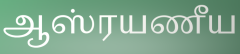
ஆஸ்ரயணீய